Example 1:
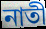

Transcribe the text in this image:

নাতী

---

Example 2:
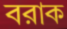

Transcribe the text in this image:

বরাক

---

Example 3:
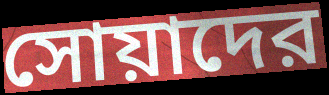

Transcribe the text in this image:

সোয়াদের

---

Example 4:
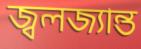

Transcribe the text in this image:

জ্বলজ্যান্ত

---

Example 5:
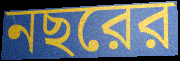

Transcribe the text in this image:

নছরের